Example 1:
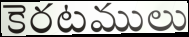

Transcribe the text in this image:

కెరటములు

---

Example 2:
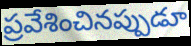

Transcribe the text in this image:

ప్రవేశించినప్పుడూ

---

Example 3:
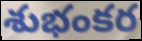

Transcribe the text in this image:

శుభంకర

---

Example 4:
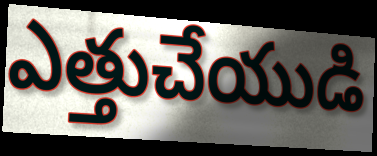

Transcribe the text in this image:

ఎత్తుచేయుడి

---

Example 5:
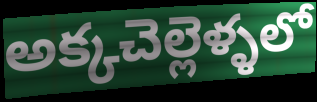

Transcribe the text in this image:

అక్కచెల్లెళ్ళలో